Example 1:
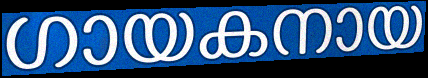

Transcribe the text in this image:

ഗായകനായ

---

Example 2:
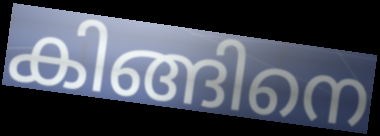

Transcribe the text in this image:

കിങ്ങിനെ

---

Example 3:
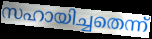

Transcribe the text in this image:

സഹായിച്ചതെന്ന്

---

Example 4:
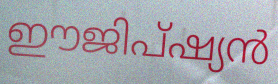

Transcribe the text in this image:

ഈജിപ്ഷ്യൻ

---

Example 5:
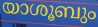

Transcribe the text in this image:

യാശൂബും